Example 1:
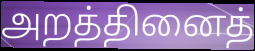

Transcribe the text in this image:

அறத்தினைத்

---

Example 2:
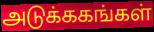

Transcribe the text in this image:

அடுக்ககங்கள்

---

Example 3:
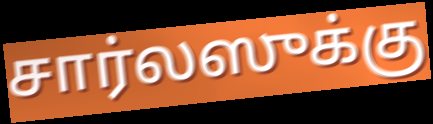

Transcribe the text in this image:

சார்லஸுக்கு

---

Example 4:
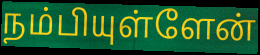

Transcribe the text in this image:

நம்பியுள்ளேன்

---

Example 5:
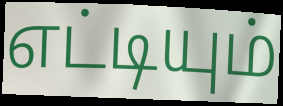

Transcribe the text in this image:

எட்டியும்